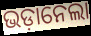
ଭଡ଼ାନେଲା